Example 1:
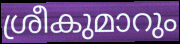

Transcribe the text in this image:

ശ്രീകുമാറും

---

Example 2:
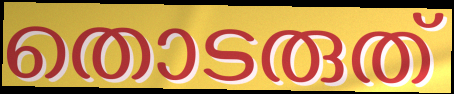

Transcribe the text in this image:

തൊടരുത്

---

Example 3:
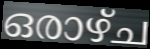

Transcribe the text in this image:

ഒരാഴ്ച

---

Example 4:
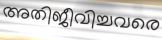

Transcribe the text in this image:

അതിജീവിച്ചവരെ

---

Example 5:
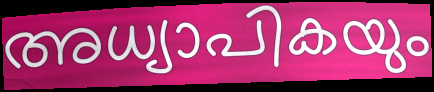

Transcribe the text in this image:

അധ്യാപികയും